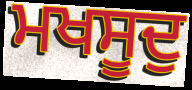
ਮਖਸੂਦੁ